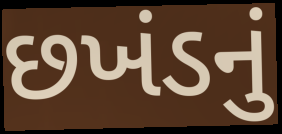
છખંડનું